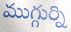
ముగ్గుర్ని